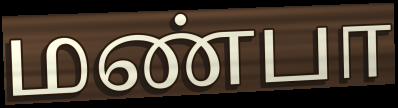
மண்பா